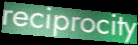
reciprocity